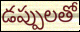
డప్పులతో